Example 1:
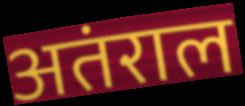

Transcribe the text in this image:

अतंराल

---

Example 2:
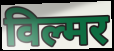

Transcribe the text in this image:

विल्मर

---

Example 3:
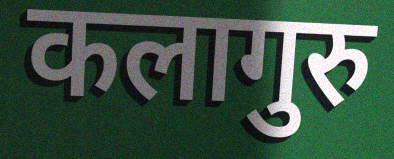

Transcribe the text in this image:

कलागुरु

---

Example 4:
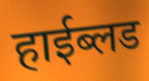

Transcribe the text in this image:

हाईब्लड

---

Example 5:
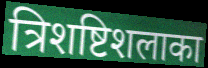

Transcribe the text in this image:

त्रिशष्टिशलाका